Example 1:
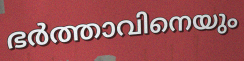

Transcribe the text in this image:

ഭർത്താവിനെയും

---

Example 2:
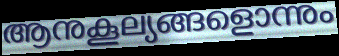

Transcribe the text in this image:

ആനുകൂല്യങ്ങളൊന്നും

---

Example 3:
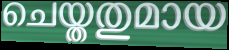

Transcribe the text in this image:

ചെയ്തതുമായ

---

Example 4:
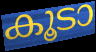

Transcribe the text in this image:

കൂടാ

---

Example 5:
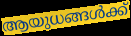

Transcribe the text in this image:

ആയുധങ്ങൾക്ക്